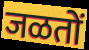
जळतों